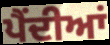
ਪੈਂਦੀਆਂ